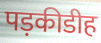
पड़कीडीह